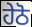
ਹੇਠੋ